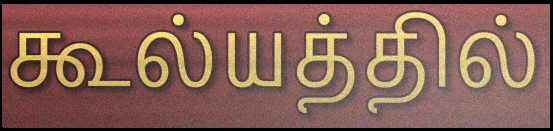
கூல்யத்தில்